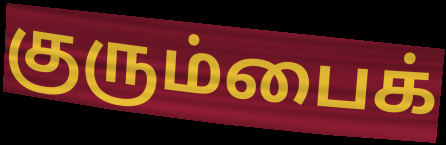
குரும்பைக்